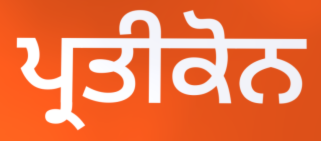
ਪ੍ਰਤੀਕੋਨ